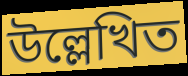
উল্লেখিত